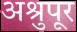
अश्रुपूर